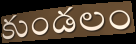
కుండలం